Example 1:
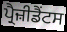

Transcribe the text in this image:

ਪ੍ਰੈਜ਼ੀਡੈਂਟਸ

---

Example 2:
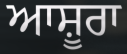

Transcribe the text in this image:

ਆਸ਼ੂਰਾ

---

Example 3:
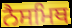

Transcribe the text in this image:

ਨੈਸਮਿਥ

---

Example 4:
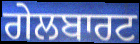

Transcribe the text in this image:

ਗੇਲਬਾਰਟ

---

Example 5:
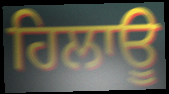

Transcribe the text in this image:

ਹਿਲਾਊ